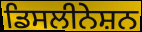
ਡਿਸਲੀਨੇਸ਼ਨ